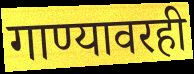
गाण्यावरही